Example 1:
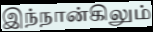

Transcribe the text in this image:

இந்நான்கிலும்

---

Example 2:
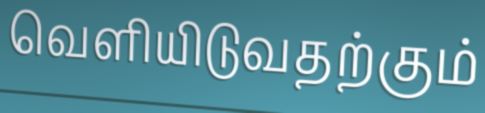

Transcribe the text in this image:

வெளியிடுவதற்கும்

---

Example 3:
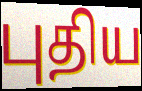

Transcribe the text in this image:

புதிய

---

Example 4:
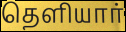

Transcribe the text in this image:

தெளியார்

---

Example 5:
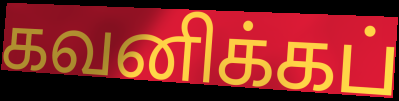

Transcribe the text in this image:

கவனிக்கப்